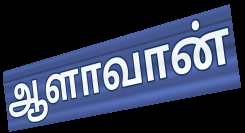
ஆளாவான்